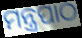
ମନ୍ତ୍ରପାଠ